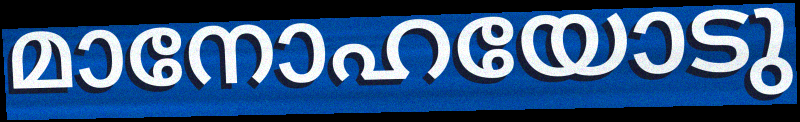
മാനോഹയോടു